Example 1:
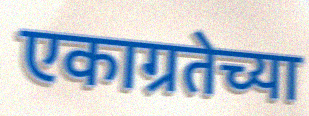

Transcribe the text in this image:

एकाग्रतेच्या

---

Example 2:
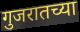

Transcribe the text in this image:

गुजरातच्या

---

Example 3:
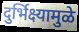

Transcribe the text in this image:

दुर्भिक्ष्यामुळे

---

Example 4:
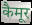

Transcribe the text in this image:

कैमूर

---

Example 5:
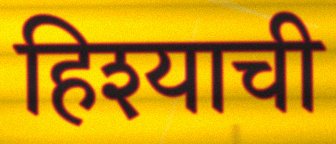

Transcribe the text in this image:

हिश्याची